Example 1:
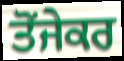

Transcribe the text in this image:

ਤੋਂਜੇਕਰ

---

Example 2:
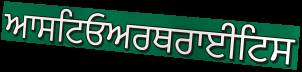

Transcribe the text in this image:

ਆਸਟਿਓਅਰਥਰਾਈਟਿਸ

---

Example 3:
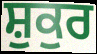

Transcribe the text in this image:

ਸ਼ੁਕੁਰ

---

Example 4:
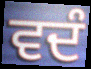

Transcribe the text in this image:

ਵਦੰ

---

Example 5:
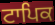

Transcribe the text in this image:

ਟਾਪਿਕ